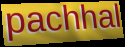
pachhal